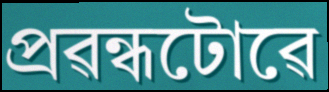
প্ৰৱন্ধটোৱে